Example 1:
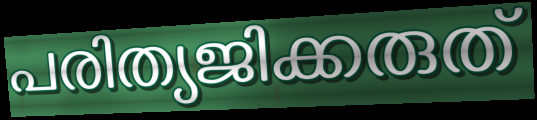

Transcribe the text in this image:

പരിത്യജിക്കരുത്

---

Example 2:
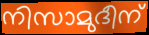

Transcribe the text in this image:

നിസാമുദീന്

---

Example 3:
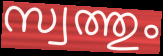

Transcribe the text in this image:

സ്വത്തും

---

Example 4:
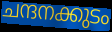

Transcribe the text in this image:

ചന്ദനക്കുടം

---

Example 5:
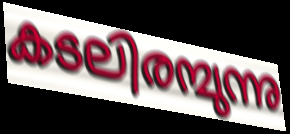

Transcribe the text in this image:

കടലിരമ്പുന്നു